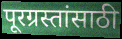
पूरग्रस्तांसाठी